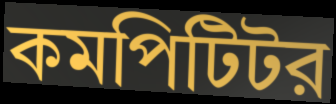
কমপিটিটর